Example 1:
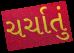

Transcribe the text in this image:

ચર્ચાતું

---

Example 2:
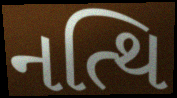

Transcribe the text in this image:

નત્થિ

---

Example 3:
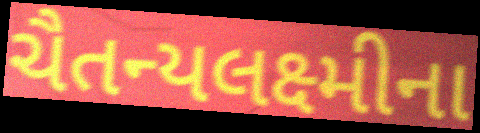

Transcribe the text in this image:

ચૈતન્યલક્ષ્મીના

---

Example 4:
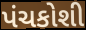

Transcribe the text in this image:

પંચકોશી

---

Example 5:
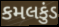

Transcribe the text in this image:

કમલકુંડ